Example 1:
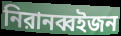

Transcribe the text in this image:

নিরানব্বইজন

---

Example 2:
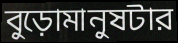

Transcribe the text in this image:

বুড়োমানুষটার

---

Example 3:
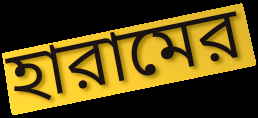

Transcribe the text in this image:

হারামের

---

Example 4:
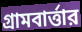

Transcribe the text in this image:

গ্রামবার্ত্তার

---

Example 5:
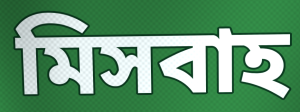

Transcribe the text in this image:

মিসবাহ